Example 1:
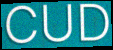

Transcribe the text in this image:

CUD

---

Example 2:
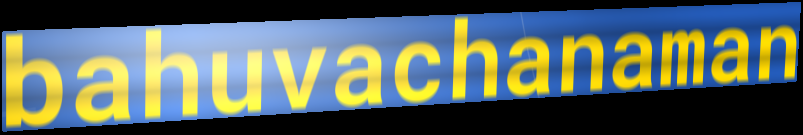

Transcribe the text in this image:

bahuvachanaman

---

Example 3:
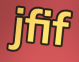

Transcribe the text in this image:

jfif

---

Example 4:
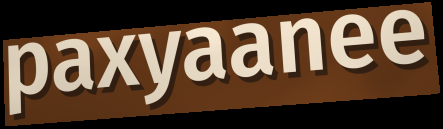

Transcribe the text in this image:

paxyaanee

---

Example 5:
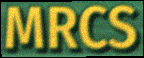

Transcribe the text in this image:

MRCS